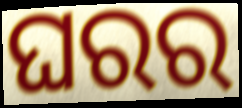
ଘରର